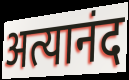
अत्यानंद